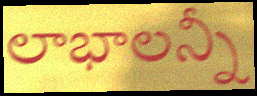
లాభాలన్నీ